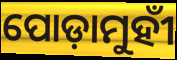
ପୋଡ଼ାମୁହୀଁ